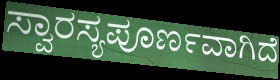
ಸ್ವಾರಸ್ಯಪೂರ್ಣವಾಗಿದೆ